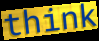
think